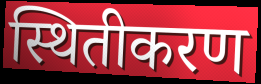
स्थितीकरण